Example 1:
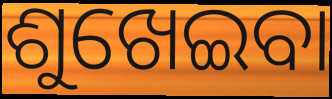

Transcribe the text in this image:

ଶୁଖେଇବା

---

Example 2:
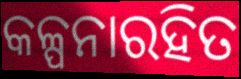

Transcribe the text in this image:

କଳ୍ପନାରହିତ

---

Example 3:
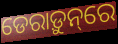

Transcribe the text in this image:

ଡେରାଡ଼ୁନ୍‌ରେ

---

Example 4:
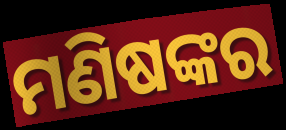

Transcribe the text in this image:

ମଣିଷଙ୍କର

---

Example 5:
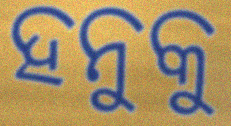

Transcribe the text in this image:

ହନୁକୁ